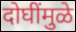
दोघींमुळे